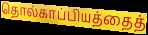
தொல்காப்பியத்தைத்